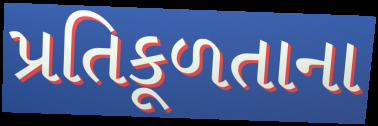
પ્રતિકૂળતાના